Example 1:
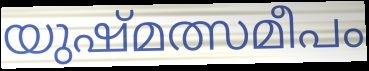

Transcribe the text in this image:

യുഷ്മത്സമീപം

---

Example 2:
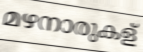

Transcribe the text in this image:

മഴനാരുകള്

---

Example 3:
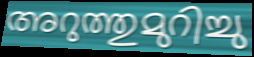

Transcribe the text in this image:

അറുത്തുമുറിച്ചു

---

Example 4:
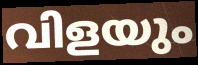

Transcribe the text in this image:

വിളയും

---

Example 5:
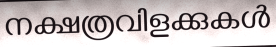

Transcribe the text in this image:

നക്ഷത്രവിളക്കുകൾ